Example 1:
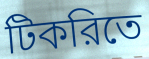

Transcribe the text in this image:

টিকরিতে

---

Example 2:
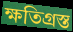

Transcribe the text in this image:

ক্ষতিগ্রস্ত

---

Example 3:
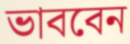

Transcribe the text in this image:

ভাববেন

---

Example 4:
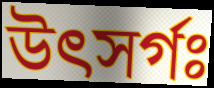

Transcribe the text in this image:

উৎসর্গঃ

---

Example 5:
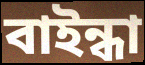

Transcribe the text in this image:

বাইন্ধা